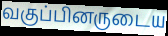
வகுப்பினருடைய